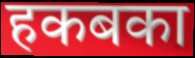
हकबका